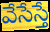
వేసేస్తే